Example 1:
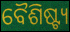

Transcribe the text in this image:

ବୈଶିଷ୍ଟ୍ୟ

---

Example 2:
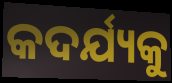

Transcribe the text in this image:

କଦର୍ଯ୍ୟକୁ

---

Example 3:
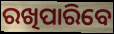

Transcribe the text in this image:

ରଖିପାରିବେ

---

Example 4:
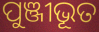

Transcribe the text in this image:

ପୁଞ୍ଜୀଭୂତ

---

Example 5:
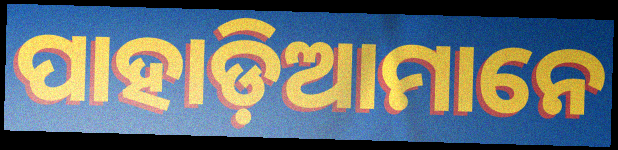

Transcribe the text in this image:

ପାହାଡ଼ିଆମାନେ